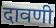
दावणी